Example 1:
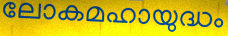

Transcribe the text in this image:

ലോകമഹായുദ്ധം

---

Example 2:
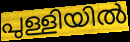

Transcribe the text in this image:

പുള്ളിയിൽ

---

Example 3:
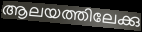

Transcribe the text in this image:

ആലയത്തിലേക്കു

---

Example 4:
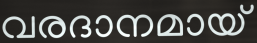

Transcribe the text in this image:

വരദാനമായ്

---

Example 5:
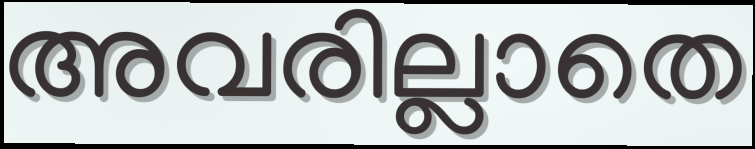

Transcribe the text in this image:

അവരില്ലാതെ